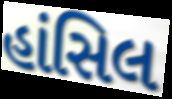
હાંસિલ